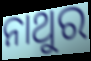
ନାଥୁର